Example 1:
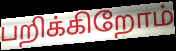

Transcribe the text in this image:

பறிக்கிறோம்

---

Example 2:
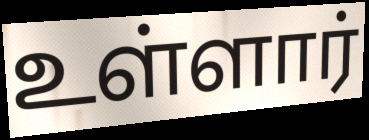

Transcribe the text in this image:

உள்ளார்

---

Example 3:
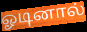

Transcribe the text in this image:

ஓடினால்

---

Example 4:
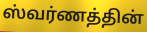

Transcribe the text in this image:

ஸ்வர்ணத்தின்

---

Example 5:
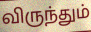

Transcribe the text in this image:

விருந்தும்